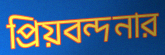
প্রিয়বন্দনার